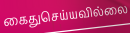
கைதுசெய்யவில்லை